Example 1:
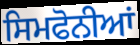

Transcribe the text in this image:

ਸਿਮਫੋਨੀਆਂ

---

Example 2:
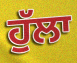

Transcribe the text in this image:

ਹੁੱਲਾ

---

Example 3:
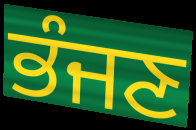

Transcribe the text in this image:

ਭੰਜਣ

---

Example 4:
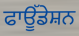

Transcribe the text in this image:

ਫਾਊੱਡੇਸ਼ਨ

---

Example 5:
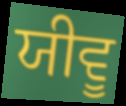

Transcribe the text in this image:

ਯੀਵੂ